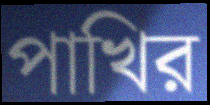
পাখির